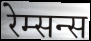
रेम्सन्स